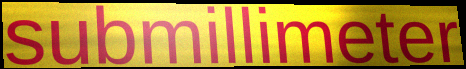
submillimeter